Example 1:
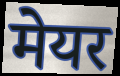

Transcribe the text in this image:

मेयर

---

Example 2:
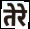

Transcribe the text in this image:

तेरे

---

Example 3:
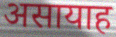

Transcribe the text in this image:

असायाह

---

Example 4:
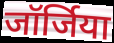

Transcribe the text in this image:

जॉर्जिया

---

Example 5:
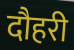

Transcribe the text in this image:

दौहरी